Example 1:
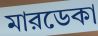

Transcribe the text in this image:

মারডেকা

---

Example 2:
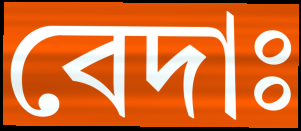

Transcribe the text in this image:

বেদাঃ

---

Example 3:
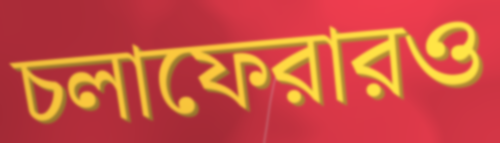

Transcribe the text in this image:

চলাফেরারও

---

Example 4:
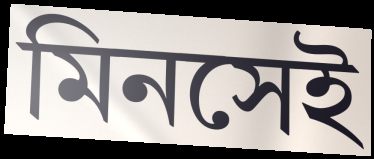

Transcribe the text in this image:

মিনসেই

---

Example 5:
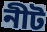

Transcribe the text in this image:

নীট